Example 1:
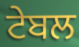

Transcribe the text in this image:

ਟੇਬਲ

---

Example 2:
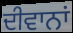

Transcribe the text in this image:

ਦੀਵਾਨਾਂ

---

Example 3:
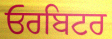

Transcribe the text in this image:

ਓਰਬਿਟਰ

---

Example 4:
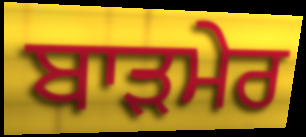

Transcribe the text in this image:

ਬਾੜਮੇਰ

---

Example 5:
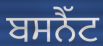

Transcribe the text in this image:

ਬਸਨੈੱਟ